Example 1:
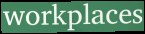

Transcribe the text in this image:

workplaces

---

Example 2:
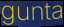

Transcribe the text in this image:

gunta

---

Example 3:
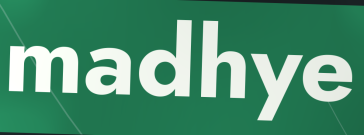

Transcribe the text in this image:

madhye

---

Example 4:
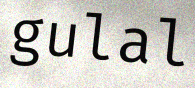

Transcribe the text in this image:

gulal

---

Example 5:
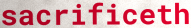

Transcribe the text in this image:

sacrificeth